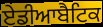
ਏਡੀਆਬੈਟਿਕ